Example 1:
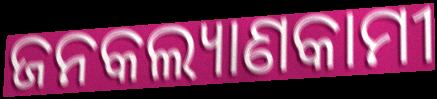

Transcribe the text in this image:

ଜନକଲ୍ୟାଣକାମୀ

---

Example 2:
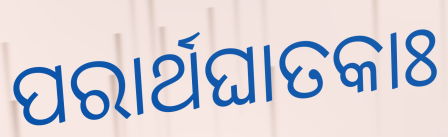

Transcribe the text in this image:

ପରାର୍ଥଘାତକାଃ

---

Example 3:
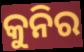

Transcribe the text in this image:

କୁନିର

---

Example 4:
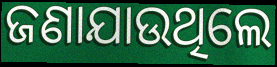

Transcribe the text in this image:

ଜଣାଯାଉଥିଲେ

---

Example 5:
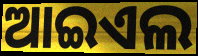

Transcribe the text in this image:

ଆଇଏଲ